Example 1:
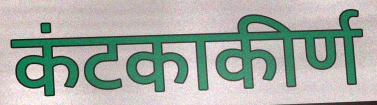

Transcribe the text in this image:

कंटकाकीर्ण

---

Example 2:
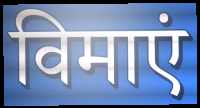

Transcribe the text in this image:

विमाएं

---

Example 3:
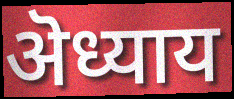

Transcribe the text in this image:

ऄध्याय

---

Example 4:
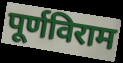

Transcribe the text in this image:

पूर्णविराम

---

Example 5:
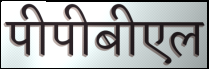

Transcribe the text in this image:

पीपीबीएल